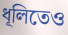
ধূলিতেও